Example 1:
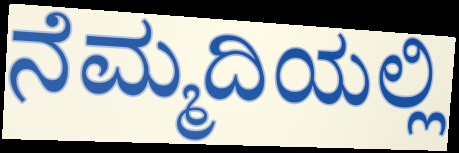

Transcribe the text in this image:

ನೆಮ್ಮದಿಯಲ್ಲಿ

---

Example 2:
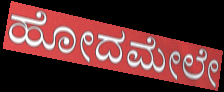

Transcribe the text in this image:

ಹೋದಮೇಲೇ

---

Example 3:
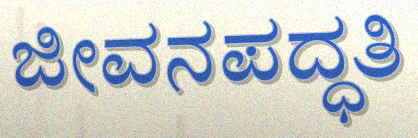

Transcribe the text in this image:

ಜೀವನಪದ್ಧತಿ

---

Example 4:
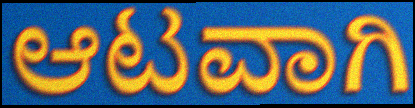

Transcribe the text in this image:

ಆಟವಾಗಿ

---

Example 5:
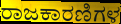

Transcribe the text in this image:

ರಾಜಕಾರಣಿಗಳ